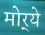
मोर्ये